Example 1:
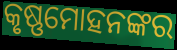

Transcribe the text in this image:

କୃଷ୍ଣମୋହନଙ୍କର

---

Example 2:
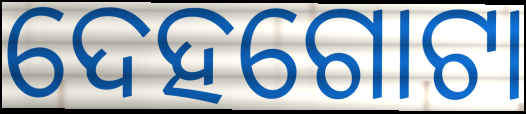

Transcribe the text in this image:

ଦେହଗୋଟା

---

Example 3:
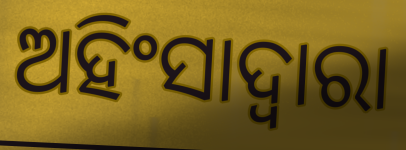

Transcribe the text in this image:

ଅହିଂସାଦ୍ୱାରା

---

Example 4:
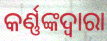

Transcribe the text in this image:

କର୍ଣ୍ଣଙ୍କଦ୍ୱାରା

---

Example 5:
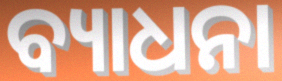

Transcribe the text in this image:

ବ୍ୟାଧନା